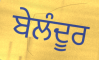
ਬੇਲੰਦੂਰ